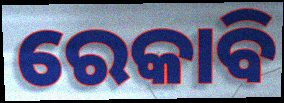
ରେକାବି